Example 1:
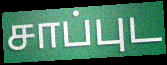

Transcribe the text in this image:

சாப்புட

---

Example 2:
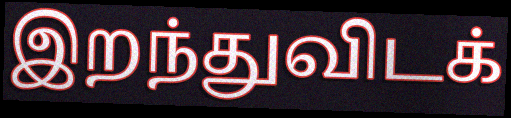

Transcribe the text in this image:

இறந்துவிடக்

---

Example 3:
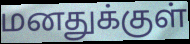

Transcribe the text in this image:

மனதுக்குள்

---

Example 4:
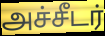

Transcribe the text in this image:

அச்சீடர்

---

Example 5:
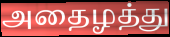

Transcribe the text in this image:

அதைழத்து